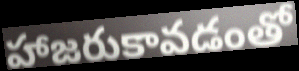
హాజరుకావడంతో